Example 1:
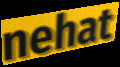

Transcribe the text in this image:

nehat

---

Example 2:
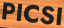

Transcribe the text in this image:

PICSI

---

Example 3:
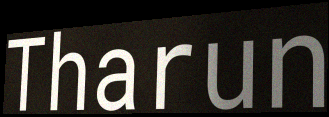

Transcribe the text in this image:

Tharun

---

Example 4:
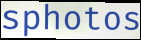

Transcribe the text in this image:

sphotos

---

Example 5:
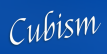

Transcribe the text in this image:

Cubism